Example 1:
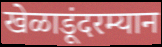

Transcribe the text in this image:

खेळाडूंदरम्यान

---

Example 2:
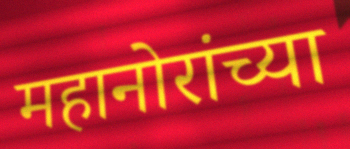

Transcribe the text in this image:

महानोरांच्या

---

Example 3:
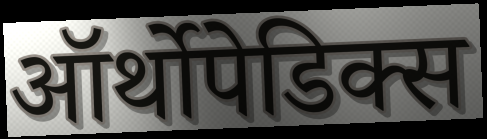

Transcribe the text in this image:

ऑर्थोपेडिक्स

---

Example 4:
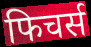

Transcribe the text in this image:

फिचर्स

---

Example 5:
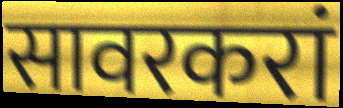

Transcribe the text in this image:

सावरकरां